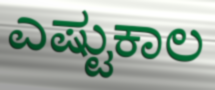
ಎಷ್ಟುಕಾಲ